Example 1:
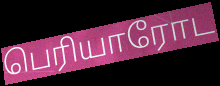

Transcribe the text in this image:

பெரியாரோட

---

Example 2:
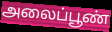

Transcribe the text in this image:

அலைப்பூண்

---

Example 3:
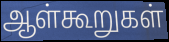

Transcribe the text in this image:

ஆள்கூறுகள்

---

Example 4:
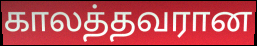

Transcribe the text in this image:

காலத்தவரான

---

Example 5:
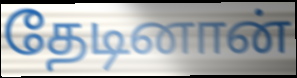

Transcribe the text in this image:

தேடினான்